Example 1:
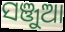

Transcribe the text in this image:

ସଞ୍ଜୁଆ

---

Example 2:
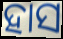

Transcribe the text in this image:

ହାସ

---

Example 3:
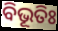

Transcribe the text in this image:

ବିଭୂତିଃ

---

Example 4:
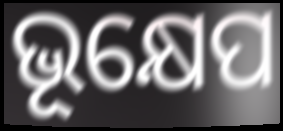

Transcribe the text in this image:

ଭୂକ୍ଷେପ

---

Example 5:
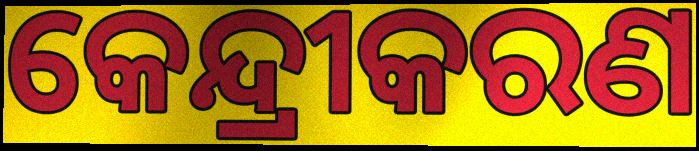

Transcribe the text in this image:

କେନ୍ଦ୍ରୀକରଣ